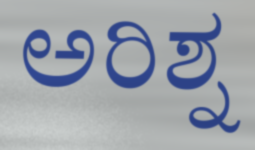
ಅರಿಶ್ನ